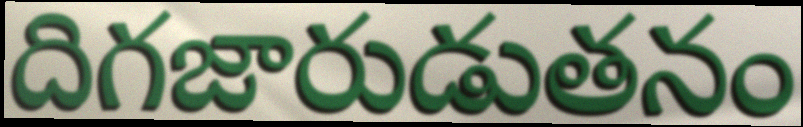
దిగజారుడుతనం